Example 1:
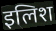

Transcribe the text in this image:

इलिश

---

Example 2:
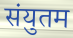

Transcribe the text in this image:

संयुतम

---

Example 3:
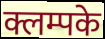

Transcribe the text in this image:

क्लम्पके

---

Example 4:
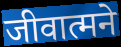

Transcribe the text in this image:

जीवात्मने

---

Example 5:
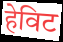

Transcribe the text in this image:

हेविट